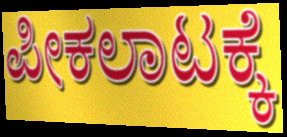
ಪೀಕಲಾಟಕ್ಕೆ